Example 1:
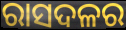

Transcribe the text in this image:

ରାସଦଳର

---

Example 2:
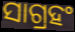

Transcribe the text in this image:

ସାଗ୍ରହଂ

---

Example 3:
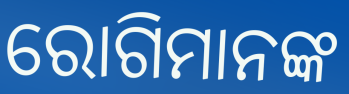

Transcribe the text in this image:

ରୋଗିମାନଙ୍କ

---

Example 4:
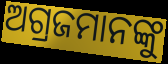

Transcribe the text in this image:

ଅଗ୍ରଜମାନଙ୍କୁ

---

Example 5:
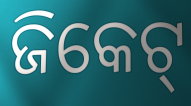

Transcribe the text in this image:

ଜିକେଟ୍